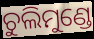
ଚୁଲିମୁଣ୍ଡେ